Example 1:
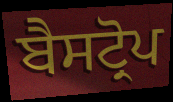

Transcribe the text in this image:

ਬੈਸਟ੍ਰੋਪ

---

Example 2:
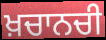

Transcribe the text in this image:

ਖ਼ਚਾਨਚੀ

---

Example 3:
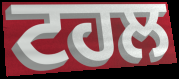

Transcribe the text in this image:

ਟਹਲ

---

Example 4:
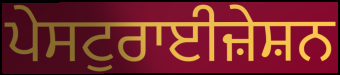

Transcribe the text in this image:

ਪੇਸਟੁਰਾਈਜ਼ੇਸ਼ਨ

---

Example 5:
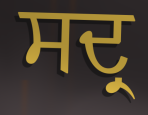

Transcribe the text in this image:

ਸਦ੍ਰ